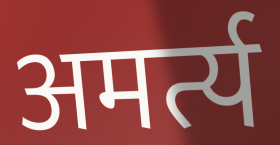
अमर्त्य